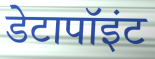
डेटापॉइंट